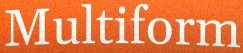
Multiform